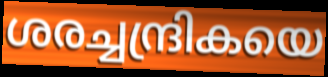
ശരച്ചന്ദ്രികയെ